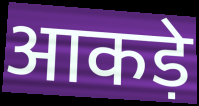
आकड़े